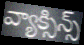
వ్యాక్సిన్స్